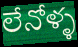
లేనోళ్ళ